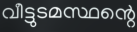
വീട്ടുടമസ്ഥന്റെ